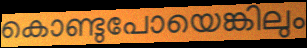
കൊണ്ടുപോയെങ്കിലും